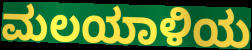
ಮಲಯಾಳಿಯ